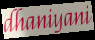
dhaniyani